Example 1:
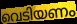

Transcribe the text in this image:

വെടിയണം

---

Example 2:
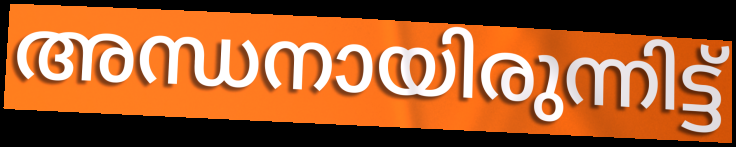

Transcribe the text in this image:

അന്ധനായിരുന്നിട്ട്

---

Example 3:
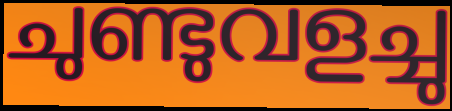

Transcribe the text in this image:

ചുണ്ടുവളച്ചു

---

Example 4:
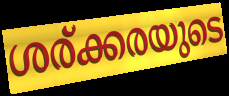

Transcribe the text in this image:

ശര്ക്കരയുടെ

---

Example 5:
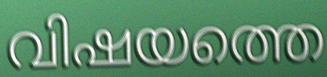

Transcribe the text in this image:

വിഷയത്തെ